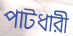
পাটধারী